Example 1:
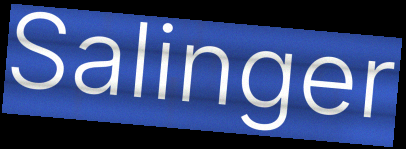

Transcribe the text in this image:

Salinger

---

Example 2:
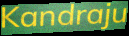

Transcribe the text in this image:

Kandraju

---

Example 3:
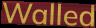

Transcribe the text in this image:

Walled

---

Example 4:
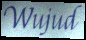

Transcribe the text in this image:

Wujud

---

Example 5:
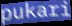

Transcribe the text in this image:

pukari